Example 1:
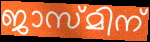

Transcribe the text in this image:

ജാസ്മിന്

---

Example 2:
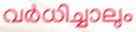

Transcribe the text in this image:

വർധിച്ചാലും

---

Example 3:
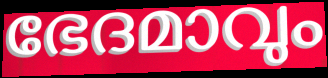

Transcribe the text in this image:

ഭേദമാവും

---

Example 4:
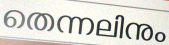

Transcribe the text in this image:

തെന്നലിനും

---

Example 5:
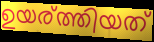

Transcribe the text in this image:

ഉയര്ത്തിയത്